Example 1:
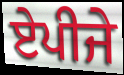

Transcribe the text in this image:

ਏਪੀਜੇ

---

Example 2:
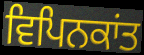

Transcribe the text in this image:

ਵਿਪਿਨਕਾਂਤ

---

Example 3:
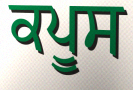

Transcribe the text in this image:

ਕਪੂਸ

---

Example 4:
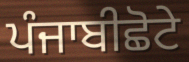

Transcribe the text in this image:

ਪੰਜਾਬੀਛੋਟੇ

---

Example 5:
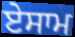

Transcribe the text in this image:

ਏਸਾਮ